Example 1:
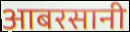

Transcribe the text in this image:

आबरसानी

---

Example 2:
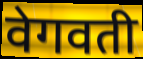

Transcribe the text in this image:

वेगवती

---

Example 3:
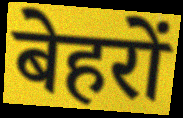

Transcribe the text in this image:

बेहरों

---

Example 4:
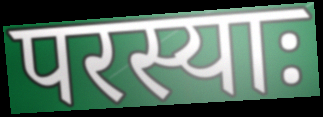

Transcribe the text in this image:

परस्याः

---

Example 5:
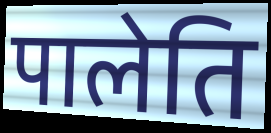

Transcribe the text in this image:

पालेति